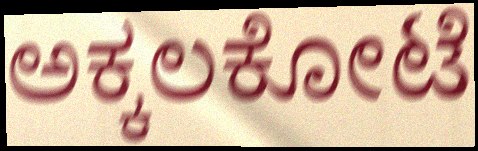
ಅಕ್ಕಲಕೋಟೆ